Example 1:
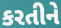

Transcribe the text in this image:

કરતીને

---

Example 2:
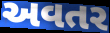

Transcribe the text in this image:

અવતર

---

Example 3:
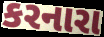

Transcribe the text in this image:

કરનારા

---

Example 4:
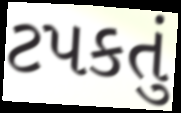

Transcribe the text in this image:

ટપકતું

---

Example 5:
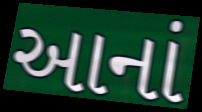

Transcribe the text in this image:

આનાં